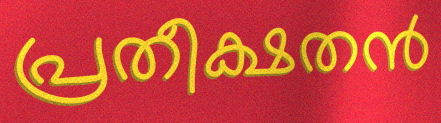
പ്രതീക്ഷതൻ